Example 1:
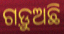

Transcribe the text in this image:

ଗଡ଼ୁଅଛି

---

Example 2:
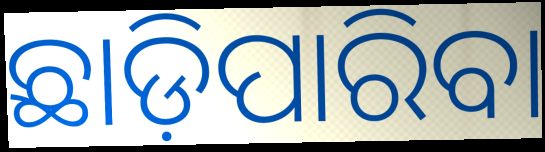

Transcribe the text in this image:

ଛାଡ଼ିପାରିବା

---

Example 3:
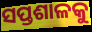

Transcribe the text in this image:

ସପ୍ତଶାଳକୁ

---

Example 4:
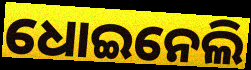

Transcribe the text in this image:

ଧୋଇନେଲି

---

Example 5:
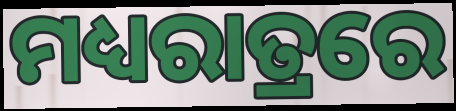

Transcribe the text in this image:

ମଧ୍ୟରାତ୍ରରେ